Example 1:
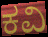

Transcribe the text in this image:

ಕವಿ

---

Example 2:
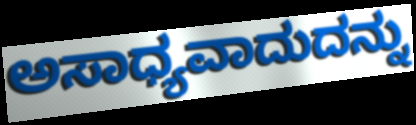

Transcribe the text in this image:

ಅಸಾಧ್ಯವಾದುದನ್ನು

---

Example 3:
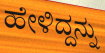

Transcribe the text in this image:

ಹೇಳಿದ್ದನ್ನು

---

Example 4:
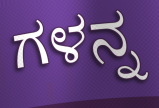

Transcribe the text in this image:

ಗಳನ್ನ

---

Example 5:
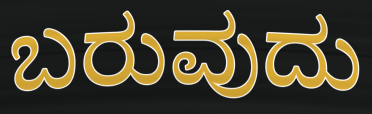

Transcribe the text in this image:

ಬರುವುದು